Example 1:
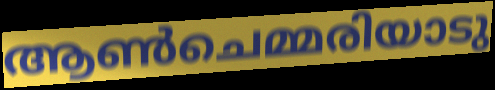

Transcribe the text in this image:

ആൺചെമ്മരിയാടു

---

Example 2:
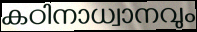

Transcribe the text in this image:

കഠിനാധ്വാനവും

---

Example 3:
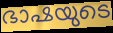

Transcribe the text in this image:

ഭാഷയുടെ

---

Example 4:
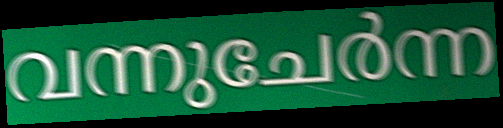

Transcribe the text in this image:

വന്നുചേർന്ന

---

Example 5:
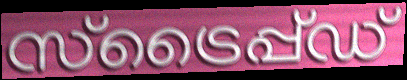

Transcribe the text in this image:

സ്ട്രൈപ്പ്ഡ്